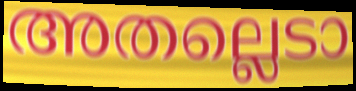
അതല്ലെടാ